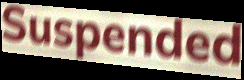
Suspended